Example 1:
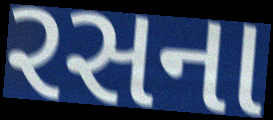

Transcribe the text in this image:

રસના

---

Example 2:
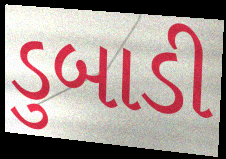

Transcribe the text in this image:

ડુબાડી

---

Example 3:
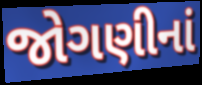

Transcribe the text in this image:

જોગણીનાં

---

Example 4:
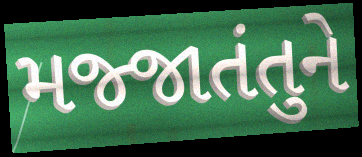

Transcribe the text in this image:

મજ્જાતંતુને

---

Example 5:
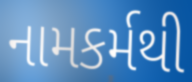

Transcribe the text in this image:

નામકર્મથી